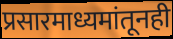
प्रसारमाध्यमांतूनही